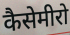
कैसेमीरो